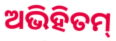
ଅଭିହିତମ୍